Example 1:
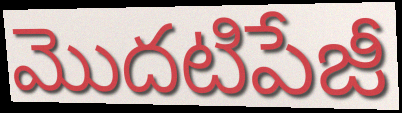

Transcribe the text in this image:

మొదటిపేజీ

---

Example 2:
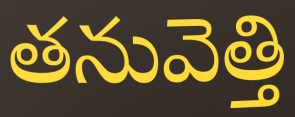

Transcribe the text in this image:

తనువెత్తి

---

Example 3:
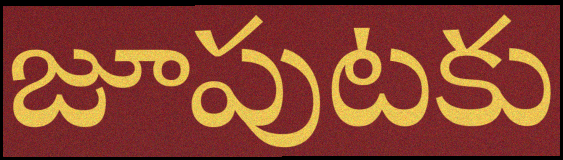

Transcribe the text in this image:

జూపుటకు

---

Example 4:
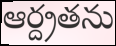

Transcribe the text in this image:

ఆర్ద్రతను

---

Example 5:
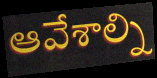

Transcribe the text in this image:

ఆవేశాల్ని